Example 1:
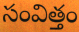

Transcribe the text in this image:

సంవిత్తం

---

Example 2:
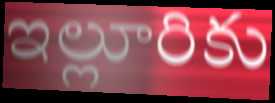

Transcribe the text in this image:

ఇల్లూరికు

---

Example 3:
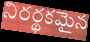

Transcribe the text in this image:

నిరర్థకమైన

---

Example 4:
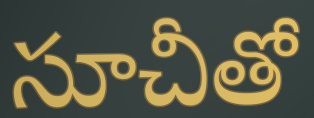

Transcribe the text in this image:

సూచీతో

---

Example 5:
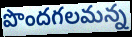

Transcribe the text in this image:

పొందగలమన్న